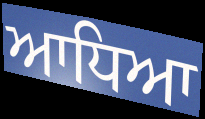
ਆਧਿਆ